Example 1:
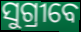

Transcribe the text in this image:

ସୁଗ୍ରୀବେ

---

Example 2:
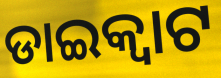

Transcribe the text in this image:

ଡାଇକ୍ଵାଟ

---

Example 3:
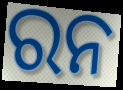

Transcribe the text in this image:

ରନ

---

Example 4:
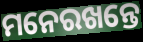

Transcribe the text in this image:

ମନେରଖନ୍ତେ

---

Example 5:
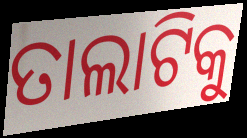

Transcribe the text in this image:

ତାଲାଟିକୁ